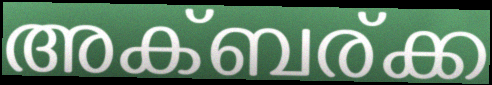
അക്ബര്ക്ക